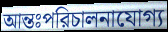
আন্তঃপরিচালনাযোগ্য